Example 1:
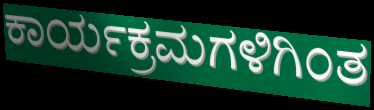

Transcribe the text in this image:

ಕಾರ್ಯಕ್ರಮಗಳಿಗಿಂತ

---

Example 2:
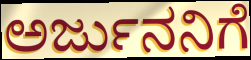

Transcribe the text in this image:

ಅರ್ಜುನನಿಗೆ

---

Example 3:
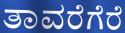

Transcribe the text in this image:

ತಾವರೆಗೆರೆ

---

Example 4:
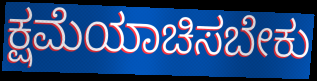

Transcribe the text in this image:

ಕ್ಷಮೆಯಾಚಿಸಬೇಕು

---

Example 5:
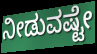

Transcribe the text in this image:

ನೀಡುವಷ್ಟೇ